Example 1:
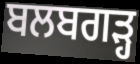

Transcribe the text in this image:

ਬਲਬਗੜ੍ਹ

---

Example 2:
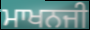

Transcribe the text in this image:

ਮਾਖਨਜੀ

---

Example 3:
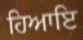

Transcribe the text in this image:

ਹਿਆਇ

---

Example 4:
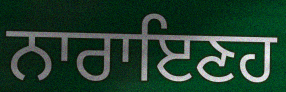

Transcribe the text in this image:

ਨਾਰਾਇਣਹ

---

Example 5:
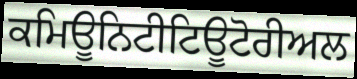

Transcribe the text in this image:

ਕਮਿਊਨਿਟੀਟਿਊਟੋਰੀਅਲ